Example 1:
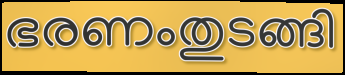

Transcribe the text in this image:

ഭരണംതുടങ്ങി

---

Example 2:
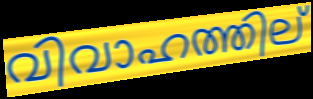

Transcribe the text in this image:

വിവാഹത്തില്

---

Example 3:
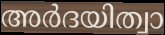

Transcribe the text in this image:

അർദയിത്വാ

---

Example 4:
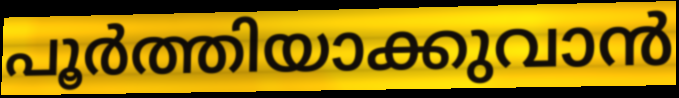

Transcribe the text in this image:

പൂർത്തിയാക്കുവാൻ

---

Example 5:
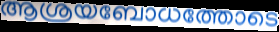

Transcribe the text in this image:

ആശ്രയബോധത്തോടെ